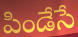
పిండేసే